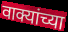
वाक्यांच्या